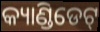
କ୍ୟାଣ୍ଡିଡେଟ୍